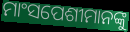
ମାଂସପେଶୀମାନଙ୍କୁ